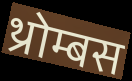
थ्रोम्बस